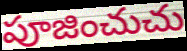
పూజించుచు